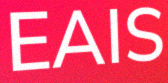
EAIS